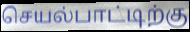
செயல்பாட்டிற்கு